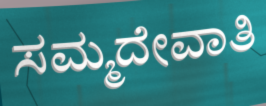
ಸಮ್ಮದೇವಾತಿ